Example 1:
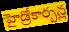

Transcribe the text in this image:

హైడ్రోకార్బన్ల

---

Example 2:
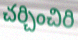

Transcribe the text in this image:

చర్చించిరి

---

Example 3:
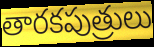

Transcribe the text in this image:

తారకపుత్రులు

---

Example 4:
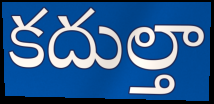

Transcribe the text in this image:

కదుల్తా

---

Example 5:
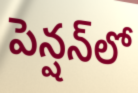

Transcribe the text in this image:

పెన్షన్‌లో